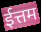
ईत्तम